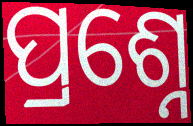
ପ୍ରଶ୍ନେ